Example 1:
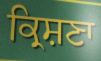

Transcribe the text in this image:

ਕ੍ਰਿਸ਼ਣਾ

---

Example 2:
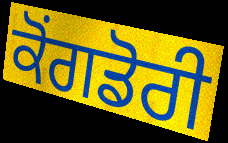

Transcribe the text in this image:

ਕੋਂਗਡੋਰੀ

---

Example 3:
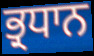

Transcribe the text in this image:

ਭ੍ਰਧਾਨ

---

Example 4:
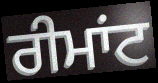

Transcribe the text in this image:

ਰੀਮਾਂਟ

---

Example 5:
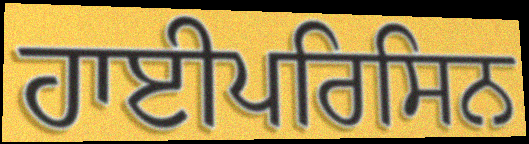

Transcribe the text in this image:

ਹਾਈਪਰਿਸਿਨ